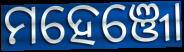
ମହେଞ୍ଜୋ